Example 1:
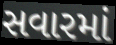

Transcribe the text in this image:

સવારમાં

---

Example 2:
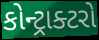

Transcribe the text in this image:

કોન્ટ્રાક્ટરો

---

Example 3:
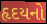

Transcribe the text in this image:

હૃદયનો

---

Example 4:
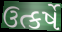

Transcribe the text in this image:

ઉત્કર્ષે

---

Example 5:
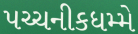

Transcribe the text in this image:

પચ્ચનીકધમ્મે